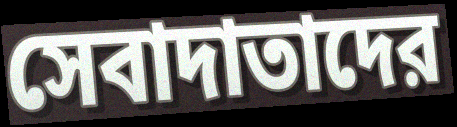
সেবাদাতাদের